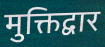
मुक्तिद्वार